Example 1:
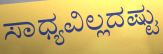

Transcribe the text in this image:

ಸಾಧ್ಯವಿಲ್ಲದಷ್ಟು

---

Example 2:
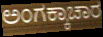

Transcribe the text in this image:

ಅಂಗಕ್ಕಾಚಾರ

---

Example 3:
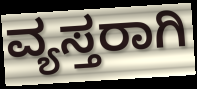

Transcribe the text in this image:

ವ್ಯಸ್ತರಾಗಿ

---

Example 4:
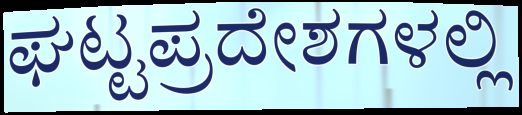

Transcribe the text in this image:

ಘಟ್ಟಪ್ರದೇಶಗಳಲ್ಲಿ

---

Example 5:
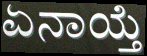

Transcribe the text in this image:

ಏನಾಯ್ತೆ